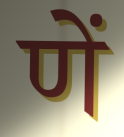
णें